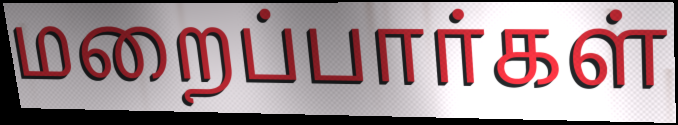
மறைப்பார்கள்